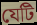
যেটি